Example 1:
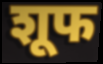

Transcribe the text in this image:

शूफ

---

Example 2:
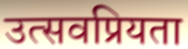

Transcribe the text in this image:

उत्सवप्रियता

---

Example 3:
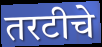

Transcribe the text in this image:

तरटीचे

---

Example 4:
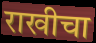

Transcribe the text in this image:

राखीचा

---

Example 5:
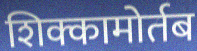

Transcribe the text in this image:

शिक्कामोर्तब